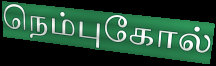
நெம்புகோல்